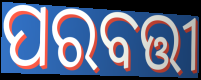
ପରବତ୍ତୀ